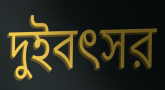
দুইবৎসর